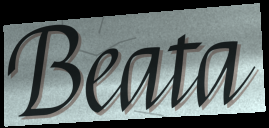
Beata